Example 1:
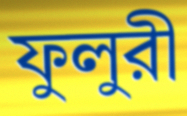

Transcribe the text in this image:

ফুলুরী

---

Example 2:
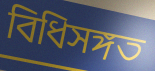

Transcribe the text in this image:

বিধিসঙ্গত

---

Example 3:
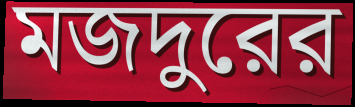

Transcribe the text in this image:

মজদুরের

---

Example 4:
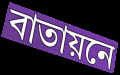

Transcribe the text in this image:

বাতায়নে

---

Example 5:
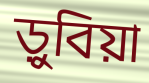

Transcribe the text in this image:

ড়ুবিয়া